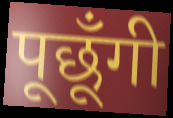
पूछूँगी